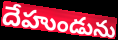
దేహుండును